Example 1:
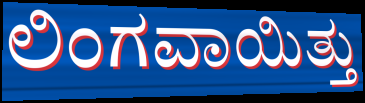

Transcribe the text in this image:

ಲಿಂಗವಾಯಿತ್ತು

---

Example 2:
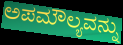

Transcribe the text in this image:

ಅಪಮೌಲ್ಯವನ್ನು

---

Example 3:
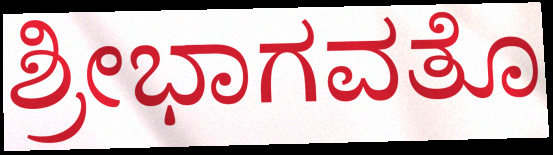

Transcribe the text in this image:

ಶ್ರೀಭಾಗವತೊ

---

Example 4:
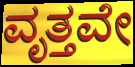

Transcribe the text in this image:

ವೃತ್ತವೇ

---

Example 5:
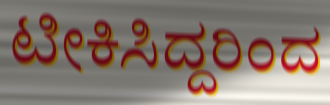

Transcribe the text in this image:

ಟೀಕಿಸಿದ್ದರಿಂದ